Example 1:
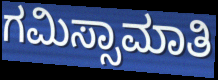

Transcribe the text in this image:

ಗಮಿಸ್ಸಾಮಾತಿ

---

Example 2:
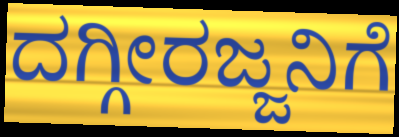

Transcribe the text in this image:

ದಗ್ಗೀರಜ್ಜನಿಗೆ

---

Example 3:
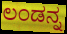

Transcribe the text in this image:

ಲಂಡನ್ನ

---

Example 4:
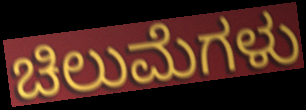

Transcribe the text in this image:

ಚಿಲುಮೆಗಳು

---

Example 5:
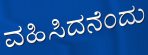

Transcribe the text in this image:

ವಹಿಸಿದನೆಂದು